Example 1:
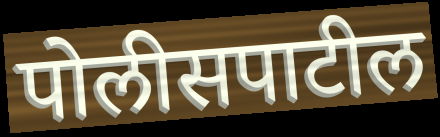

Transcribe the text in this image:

पोलीसपाटील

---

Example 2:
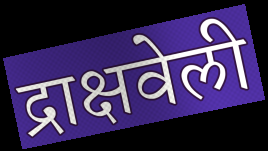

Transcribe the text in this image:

द्राक्षवेली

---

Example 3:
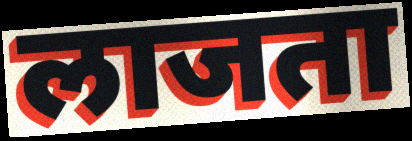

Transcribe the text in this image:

लाजता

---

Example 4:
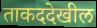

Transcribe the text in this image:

ताकददेखील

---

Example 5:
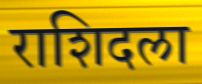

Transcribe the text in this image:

राशिदला